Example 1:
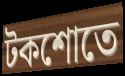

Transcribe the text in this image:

টকশোতে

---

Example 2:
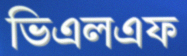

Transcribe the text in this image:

ভিএলএফ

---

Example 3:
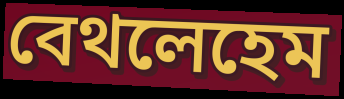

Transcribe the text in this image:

বেথলেহেম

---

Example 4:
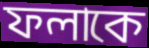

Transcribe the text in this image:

ফলাকে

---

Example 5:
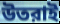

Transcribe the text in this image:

উতরাই